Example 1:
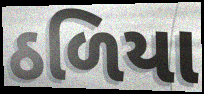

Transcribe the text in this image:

ઠળિયા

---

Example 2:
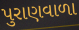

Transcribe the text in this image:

પુરાણવાળા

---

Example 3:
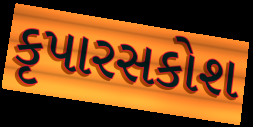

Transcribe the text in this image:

કૃપારસકોશ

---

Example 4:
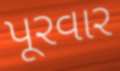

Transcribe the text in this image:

પૂરવાર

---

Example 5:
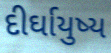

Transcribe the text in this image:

દીર્ઘાયુષ્ય